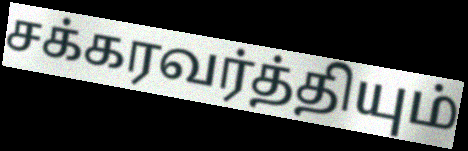
சக்கரவர்த்தியும்